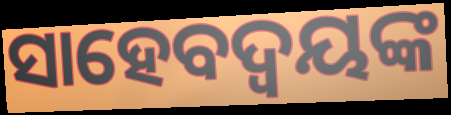
ସାହେବଦ୍ୱୟଙ୍କ